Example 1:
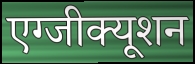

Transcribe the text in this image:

एग्जीक्यूशन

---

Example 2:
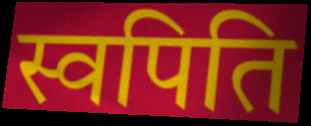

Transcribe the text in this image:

स्वपिति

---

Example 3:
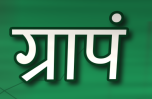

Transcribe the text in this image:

ग्रापं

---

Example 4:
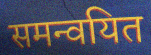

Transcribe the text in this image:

समन्वयित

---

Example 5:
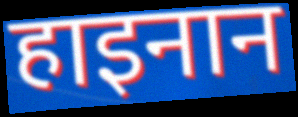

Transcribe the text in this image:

हाइनान